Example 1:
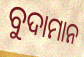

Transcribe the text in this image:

ବୁଦାମାନ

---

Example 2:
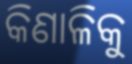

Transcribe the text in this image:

କିଣାଳିକୁ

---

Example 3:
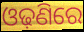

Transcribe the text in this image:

ଓଢ଼ଣିରେ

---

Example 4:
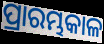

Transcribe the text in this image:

ପ୍ରାରମ୍ଭକାଳ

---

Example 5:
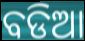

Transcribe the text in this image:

ବଡିଆ